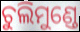
ଚୁଲିମୁଣ୍ଡେ